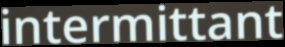
intermittant